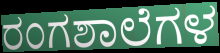
ರಂಗಶಾಲೆಗಳ